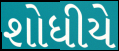
શોધીયે